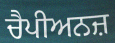
ਚੈਪੀਅਨਜ਼